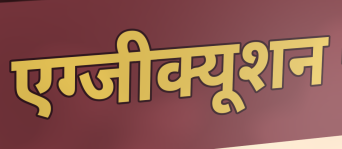
एग्जीक्यूशन